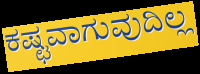
ಕಷ್ಟವಾಗುವುದಿಲ್ಲ